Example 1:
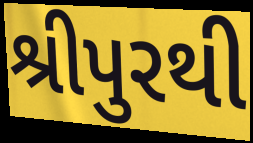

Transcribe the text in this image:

શ્રીપુરથી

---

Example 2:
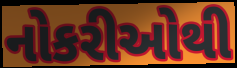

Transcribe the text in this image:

નોકરીઓથી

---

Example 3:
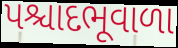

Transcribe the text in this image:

પશ્ચાદભૂવાળા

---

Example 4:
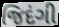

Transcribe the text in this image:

જિદંગી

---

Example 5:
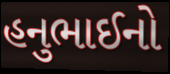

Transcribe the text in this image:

હનુભાઈનો